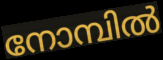
നോമ്പിൽ